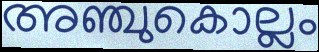
അഞ്ചുകൊല്ലം